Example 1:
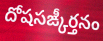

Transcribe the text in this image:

దోషసఙ్కీర్తనం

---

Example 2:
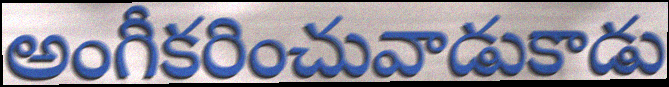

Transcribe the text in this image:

అంగీకరించువాడుకాడు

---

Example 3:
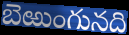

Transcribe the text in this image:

బెఱుంగునది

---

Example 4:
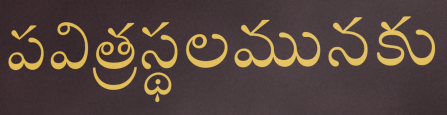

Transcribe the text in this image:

పవిత్రస్థలమునకు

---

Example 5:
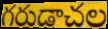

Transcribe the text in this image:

గరుడాచల